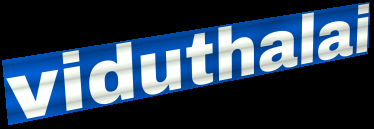
viduthalai